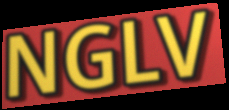
NGLV